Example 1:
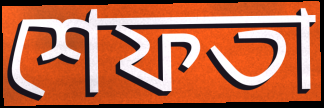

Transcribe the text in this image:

শেফতা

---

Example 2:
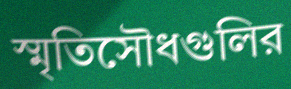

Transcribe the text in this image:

স্মৃতিসৌধগুলির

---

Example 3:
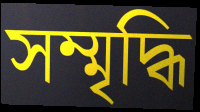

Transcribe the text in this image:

সম্মৃদ্ধি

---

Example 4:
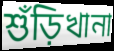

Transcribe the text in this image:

শুঁড়িখানা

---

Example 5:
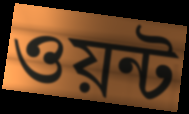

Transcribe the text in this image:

ওয়ন্ট